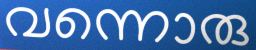
വന്നൊരു